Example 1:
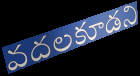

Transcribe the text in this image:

వదలకూడని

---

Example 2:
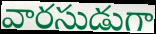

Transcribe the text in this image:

వారసుడుగా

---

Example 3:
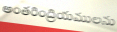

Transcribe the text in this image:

అంతరింద్రియములను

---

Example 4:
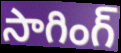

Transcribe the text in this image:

సాగింగ్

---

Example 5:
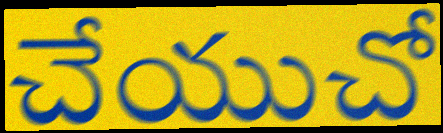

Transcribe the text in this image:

చేయుచో